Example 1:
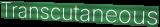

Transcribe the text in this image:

Transcutaneous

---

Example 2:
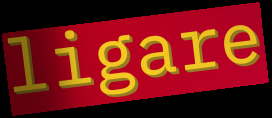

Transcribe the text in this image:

ligare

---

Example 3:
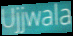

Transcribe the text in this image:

Ujjwala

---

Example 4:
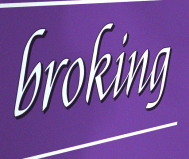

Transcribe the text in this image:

broking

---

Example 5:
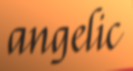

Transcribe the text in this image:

angelic